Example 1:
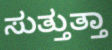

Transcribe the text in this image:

ಸುತ್ತುತ್ತಾ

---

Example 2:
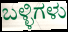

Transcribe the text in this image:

ಬಳ್ಳಿಗಳು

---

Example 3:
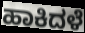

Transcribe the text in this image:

ಹಾಕಿದಳೆ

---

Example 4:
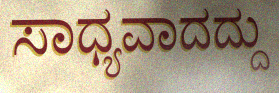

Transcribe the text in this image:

ಸಾಧ್ಯವಾದದ್ದು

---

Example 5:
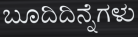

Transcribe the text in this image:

ಬೂದಿದಿನ್ನೆಗಳು